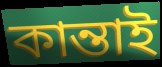
কান্তাই